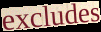
excludes